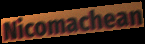
Nicomachean